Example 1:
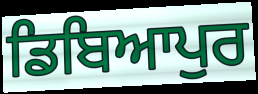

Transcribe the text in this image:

ਡਿਬਿਆਪੁਰ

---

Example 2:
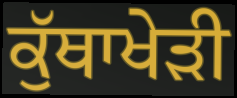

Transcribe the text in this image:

ਕੁੱਥਾਖੇੜੀ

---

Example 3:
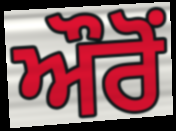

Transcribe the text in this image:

ਔਰੋਂ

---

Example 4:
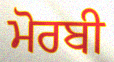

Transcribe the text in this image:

ਮੋਰਬੀ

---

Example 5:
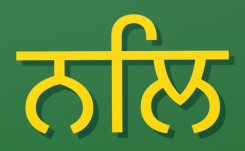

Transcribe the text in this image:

ਨਲਿ